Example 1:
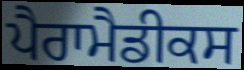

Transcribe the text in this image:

ਪੈਰਾਮੈਡੀਕਸ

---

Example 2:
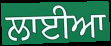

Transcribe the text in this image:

ਲਾਈਆ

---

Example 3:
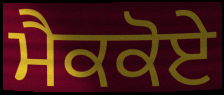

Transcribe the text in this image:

ਮੈਕਕੋਏ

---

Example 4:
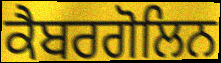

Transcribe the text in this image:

ਕੈਬਰਗੋਲਿਨ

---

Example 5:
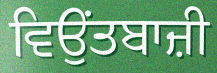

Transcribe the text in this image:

ਵਿਉਂਤਬਾਜ਼ੀ